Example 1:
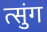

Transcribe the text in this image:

त्सुंग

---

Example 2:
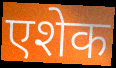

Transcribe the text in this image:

एशेक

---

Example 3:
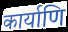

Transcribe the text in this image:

कार्याणि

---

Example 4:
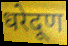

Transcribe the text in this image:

धरेदूण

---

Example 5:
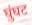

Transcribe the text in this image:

घुंघट